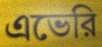
এভেরি